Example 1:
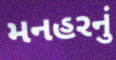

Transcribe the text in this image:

મનહરનું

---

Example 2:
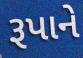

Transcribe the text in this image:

રૂપાને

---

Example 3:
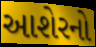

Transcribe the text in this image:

આશેરનો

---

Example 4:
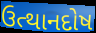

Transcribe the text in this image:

ઉત્થાનદોષ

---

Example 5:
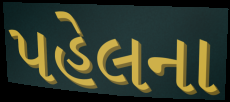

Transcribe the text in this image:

પહેલના